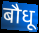
बौधू